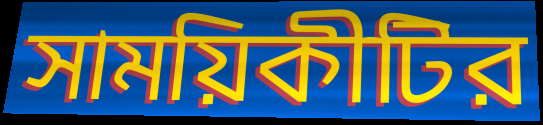
সাময়িকীটির